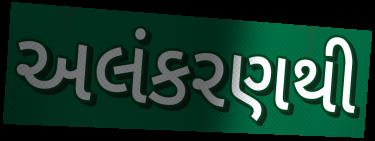
અલંકરણથી